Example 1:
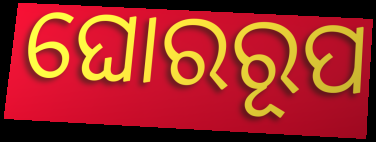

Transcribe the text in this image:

ଘୋରରୂପ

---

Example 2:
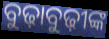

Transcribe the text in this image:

ବୁଢ଼ାବୁଢ଼ୀଙ୍କ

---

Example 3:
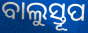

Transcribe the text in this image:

ବାଲୁସ୍ତୂପ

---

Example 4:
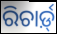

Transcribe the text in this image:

ରିଚାର୍ଡ଼୍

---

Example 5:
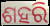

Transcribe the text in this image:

ଶହରି